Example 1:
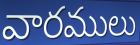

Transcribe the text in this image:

వారములు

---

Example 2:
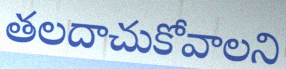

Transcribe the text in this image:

తలదాచుకోవాలని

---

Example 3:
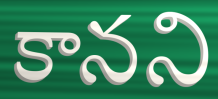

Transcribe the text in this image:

కానని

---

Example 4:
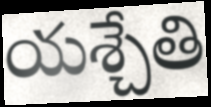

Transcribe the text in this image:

యశ్చేతి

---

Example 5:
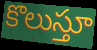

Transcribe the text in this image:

కొలుస్తూ